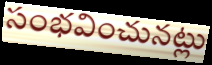
సంభవించునట్లు